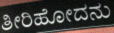
ತೀರಿಹೋದನು